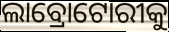
ଲାବ୍ରୋଟୋରୀକୁ